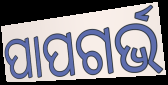
ପାପଗର୍ଭ